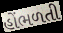
હોંભળતી